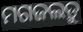
ମଗଜଲଡ଼ୁ